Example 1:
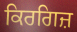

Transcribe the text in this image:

ਕਿਰਗਿਜ਼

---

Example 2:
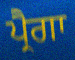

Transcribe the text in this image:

ਪ੍ਰੈਗਾ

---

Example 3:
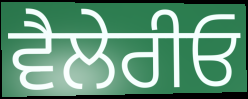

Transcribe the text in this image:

ਵੈਲੇਰੀਓ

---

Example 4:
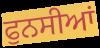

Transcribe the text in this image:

ਫੁਨਸੀਆਂ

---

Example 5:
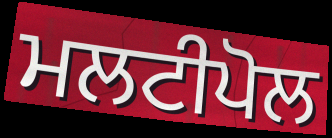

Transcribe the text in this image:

ਮਲਟੀਪੋਲ